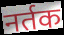
नर्तक